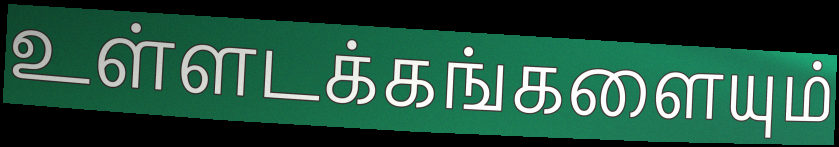
உள்ளடக்கங்களையும்